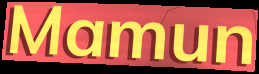
Mamun